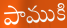
పాముకి